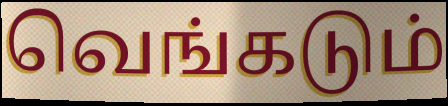
வெங்கடும்